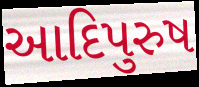
આદિપુરુષ